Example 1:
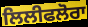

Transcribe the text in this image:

ਲਿਲੀਫਲੋਰਾ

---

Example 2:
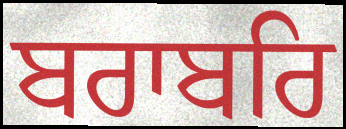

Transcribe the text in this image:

ਬਰਾਬਰਿ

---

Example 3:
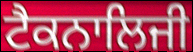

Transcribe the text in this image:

ਟੈਕਨਾਲਿਜੀ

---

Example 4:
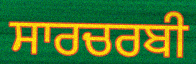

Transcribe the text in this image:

ਸਾਰਚਰਬੀ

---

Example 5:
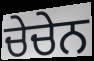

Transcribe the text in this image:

ਚੇਚੇਨ